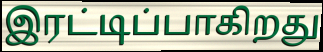
இரட்டிப்பாகிறது